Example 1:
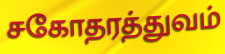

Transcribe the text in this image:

சகோதரத்துவம்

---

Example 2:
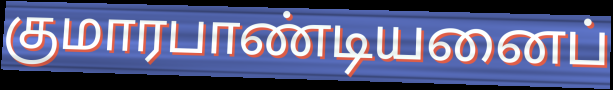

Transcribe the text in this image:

குமாரபாண்டியனைப்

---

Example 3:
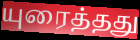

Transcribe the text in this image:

யுரைத்தது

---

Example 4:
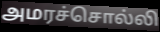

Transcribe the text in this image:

அமரச்சொல்லி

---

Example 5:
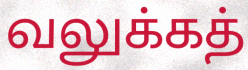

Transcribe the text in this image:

வலுக்கத்